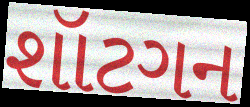
શૉટગન